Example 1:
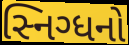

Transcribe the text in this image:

સ્નિગ્ધનો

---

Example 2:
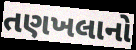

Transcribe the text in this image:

તણખલાનો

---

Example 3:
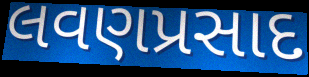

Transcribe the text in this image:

લવણપ્રસાદ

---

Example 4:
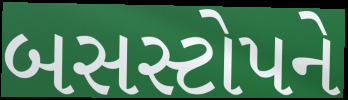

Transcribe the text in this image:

બસસ્ટોપને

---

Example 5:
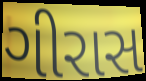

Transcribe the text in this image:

ગીરાસ